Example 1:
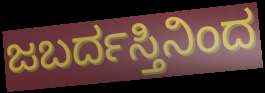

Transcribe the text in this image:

ಜಬರ್ದಸ್ತಿನಿಂದ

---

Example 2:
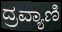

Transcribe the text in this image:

ದ್ರವ್ಯಾಣಿ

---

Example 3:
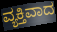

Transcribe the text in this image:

ವ್ಯಕ್ತಿವಾದ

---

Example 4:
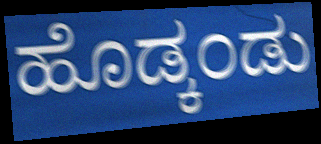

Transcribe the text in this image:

ಹೊಡ್ಕಂಡು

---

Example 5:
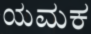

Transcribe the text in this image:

ಯಮಕ